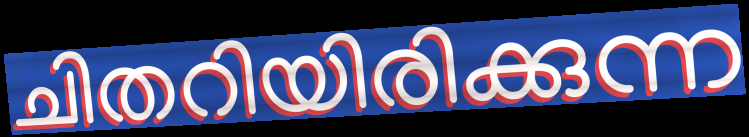
ചിതറിയിരിക്കുന്ന